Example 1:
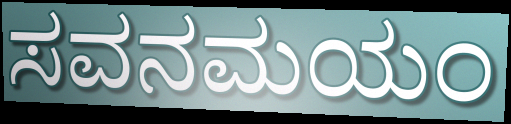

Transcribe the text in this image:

ಸವನಮಯಂ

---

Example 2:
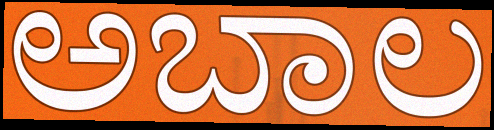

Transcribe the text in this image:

ಅಬಾಲ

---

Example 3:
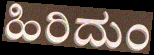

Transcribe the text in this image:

ಹಿರಿದುಂ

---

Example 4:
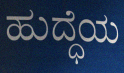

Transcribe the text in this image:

ಹುದ್ಧೆಯ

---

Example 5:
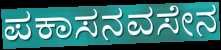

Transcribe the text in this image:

ಪಕಾಸನವಸೇನ